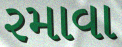
રમાવા